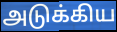
அடுக்கிய